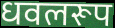
धवलरूप